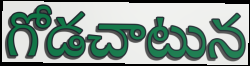
గోడచాటున